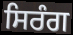
ਸਿਰੰਗ